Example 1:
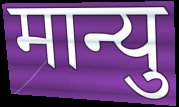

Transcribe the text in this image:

मान्यु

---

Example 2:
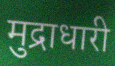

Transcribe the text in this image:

मुद्राधारी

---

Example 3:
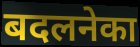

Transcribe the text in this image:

बदलनेका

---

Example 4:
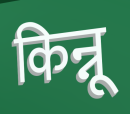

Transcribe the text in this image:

किन्नू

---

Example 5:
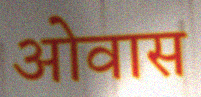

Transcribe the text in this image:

ओवास